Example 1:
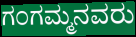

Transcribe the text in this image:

ಗಂಗಮ್ಮನವರು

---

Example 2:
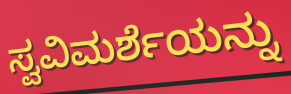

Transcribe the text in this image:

ಸ್ವವಿಮರ್ಶೆಯನ್ನು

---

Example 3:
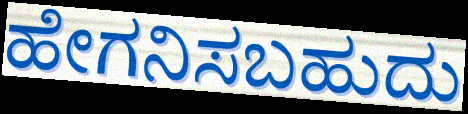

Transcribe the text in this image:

ಹೇಗನಿಸಬಹುದು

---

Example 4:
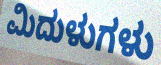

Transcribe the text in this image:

ಮಿದುಳುಗಳು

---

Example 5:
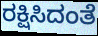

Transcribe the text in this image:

ರಕ್ಷಿಸಿದಂತೆ